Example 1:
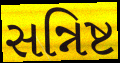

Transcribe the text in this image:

સન્નિષ્ટ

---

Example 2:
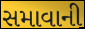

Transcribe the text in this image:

સમાવાની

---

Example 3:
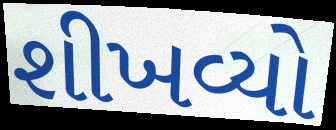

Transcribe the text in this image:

શીખવ્યો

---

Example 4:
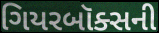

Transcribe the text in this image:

ગિયરબૉક્સની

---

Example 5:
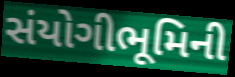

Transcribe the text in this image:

સંયોગીભૂમિની